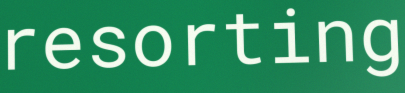
resorting